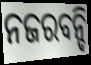
ନଜରବନ୍ଦି